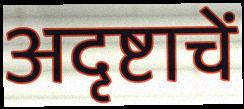
अदृष्टाचें